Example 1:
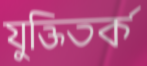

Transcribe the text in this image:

যুক্তিতর্ক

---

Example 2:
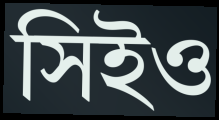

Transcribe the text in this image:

সিইও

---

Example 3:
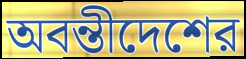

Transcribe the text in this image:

অবন্তীদেশের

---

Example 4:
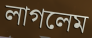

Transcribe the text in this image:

লাগলেম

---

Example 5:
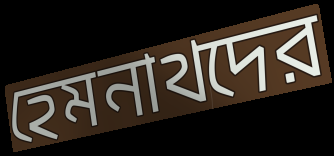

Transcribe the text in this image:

হেমনাথদের